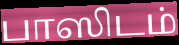
பாஸிடம்